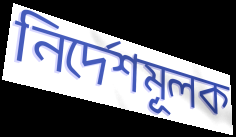
নির্দেশমূলক